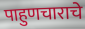
पाहुणचाराचे